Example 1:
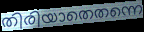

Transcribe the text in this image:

തിരിയാതെതന്നെ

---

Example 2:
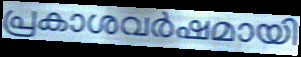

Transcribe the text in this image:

പ്രകാശവർഷമായി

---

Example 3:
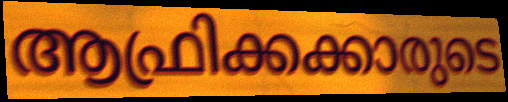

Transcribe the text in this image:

ആഫ്രിക്കക്കാരുടെ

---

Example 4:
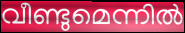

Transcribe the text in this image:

വീണ്ടുമെന്നിൽ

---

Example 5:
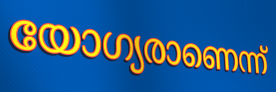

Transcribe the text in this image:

യോഗ്യരാണെന്ന്